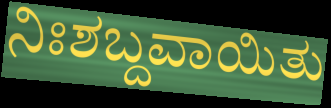
ನಿಃಶಬ್ದವಾಯಿತು